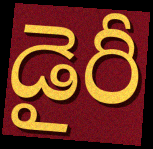
డైరీ